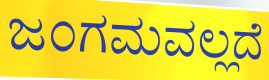
ಜಂಗಮವಲ್ಲದೆ